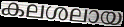
കലശലായ